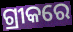
ଗ୍ରୀକରେ